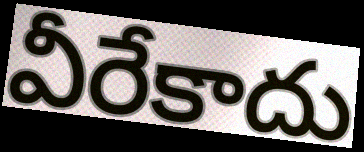
వీరేకాదు